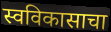
स्वविकासाचा